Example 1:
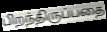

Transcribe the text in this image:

பிறந்திருப்பதை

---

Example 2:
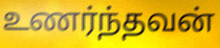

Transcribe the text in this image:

உணர்ந்தவன்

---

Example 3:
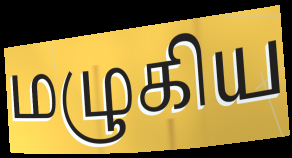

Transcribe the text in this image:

மழுகிய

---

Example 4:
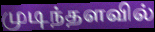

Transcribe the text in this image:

முடிந்தளவில்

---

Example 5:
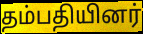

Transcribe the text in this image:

தம்பதியினர்